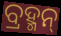
ବ୍ରହ୍ମନ୍